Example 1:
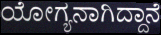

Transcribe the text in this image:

ಯೋಗ್ಯನಾಗಿದ್ದಾನೆ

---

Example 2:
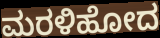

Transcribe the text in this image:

ಮರಳಿಹೋದ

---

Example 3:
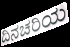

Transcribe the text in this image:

ದಿನಚರಿಯ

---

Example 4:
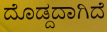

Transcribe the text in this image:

ದೊಡ್ದದಾಗಿದೆ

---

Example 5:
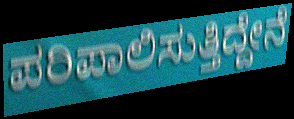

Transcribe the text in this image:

ಪರಿಪಾಲಿಸುತ್ತಿದ್ದೇನೆ